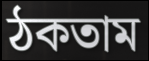
ঠকতাম